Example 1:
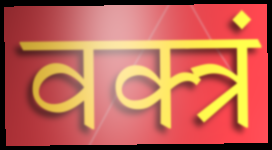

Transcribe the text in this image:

वक्त्रं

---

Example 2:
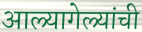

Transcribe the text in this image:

आल्यागेल्यांची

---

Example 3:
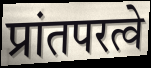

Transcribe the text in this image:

प्रांतपरत्वे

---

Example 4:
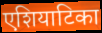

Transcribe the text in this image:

एशियाटिका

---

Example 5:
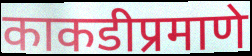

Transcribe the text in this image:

काकडीप्रमाणे